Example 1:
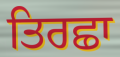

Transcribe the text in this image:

ਤਿਰਛਾ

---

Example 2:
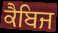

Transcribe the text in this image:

ਕੈਬਿਜ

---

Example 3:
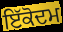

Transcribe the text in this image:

ਇੱਕੋਦਮ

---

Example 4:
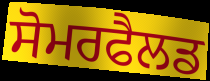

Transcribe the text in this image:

ਸੋਮਰਫੈਲਡ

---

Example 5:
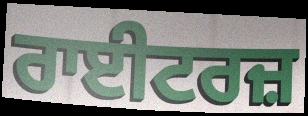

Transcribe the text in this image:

ਰਾਈਟਰਜ਼